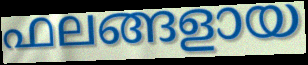
ഫലങ്ങളായ